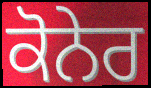
ਕੋਨੇਰ